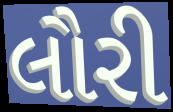
લૌરી